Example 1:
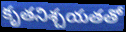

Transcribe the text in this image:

కృతనిశ్చయతతో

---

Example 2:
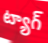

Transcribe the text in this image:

ట్యాగ్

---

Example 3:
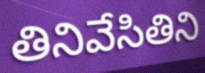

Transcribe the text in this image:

తినివేసితిని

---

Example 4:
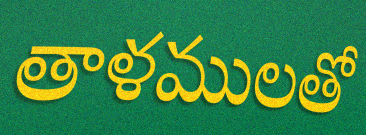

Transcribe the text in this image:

తాళములతో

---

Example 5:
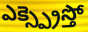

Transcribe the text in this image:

ఎక్స్ప్రెస్తో